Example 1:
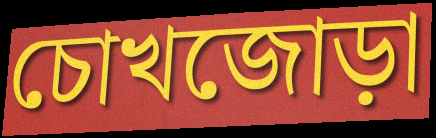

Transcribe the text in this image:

চোখজোড়া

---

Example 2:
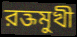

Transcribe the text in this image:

রক্তমুখী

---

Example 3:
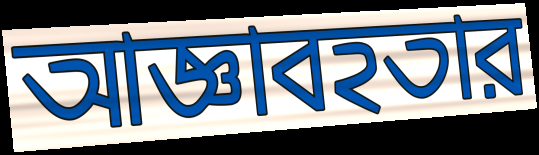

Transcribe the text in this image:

আজ্ঞাবহতার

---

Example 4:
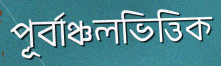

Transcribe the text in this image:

পূর্বাঞ্চলভিত্তিক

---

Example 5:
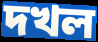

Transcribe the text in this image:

দখল